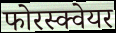
फोरस्क्वेयर